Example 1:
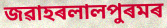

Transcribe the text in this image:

জৱাহৰলালপুৰমৰ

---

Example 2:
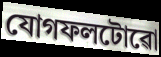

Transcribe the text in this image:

যোগফলটোৱো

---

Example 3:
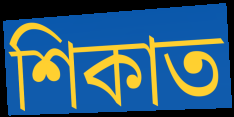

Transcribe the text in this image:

শিকাত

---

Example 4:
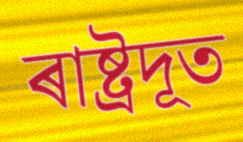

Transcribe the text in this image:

ৰাষ্ট্ৰদূত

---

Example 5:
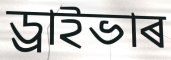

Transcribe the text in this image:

ড্ৰাইভাৰ